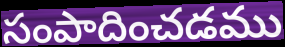
సంపాదించడము